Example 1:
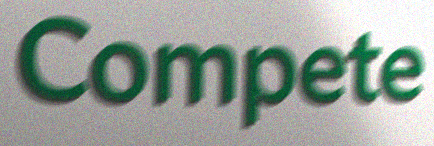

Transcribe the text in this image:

Compete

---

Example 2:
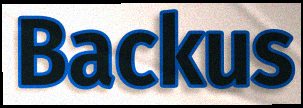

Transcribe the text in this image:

Backus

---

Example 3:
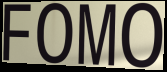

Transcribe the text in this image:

FOMO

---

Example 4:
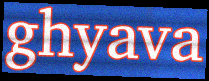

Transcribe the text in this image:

ghyava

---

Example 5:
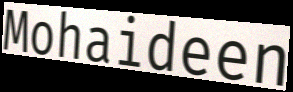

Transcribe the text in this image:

Mohaideen